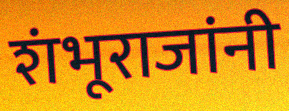
शंभूराजांनी